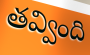
తవ్వింది